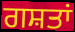
ਗਸ਼ਤਾਂ